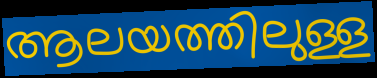
ആലയത്തിലുള്ള